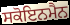
ਸਕੋਇਨਮੈਨ